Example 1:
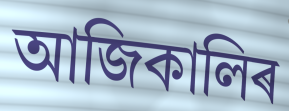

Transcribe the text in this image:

আজিকালিৰ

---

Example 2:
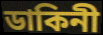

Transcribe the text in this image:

ডাকিনী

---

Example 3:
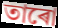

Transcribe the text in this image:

তাৰো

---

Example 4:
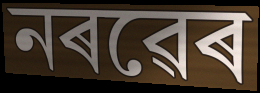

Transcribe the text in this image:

নৰৱেৰ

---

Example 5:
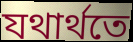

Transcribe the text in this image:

যথাৰ্থতে